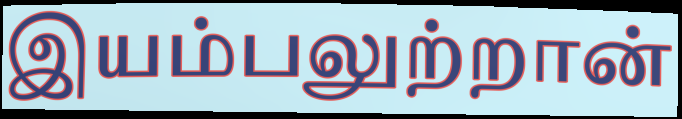
இயம்பலுற்றான்